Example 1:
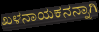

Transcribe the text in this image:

ಖಳನಾಯಕನನ್ನಾಗಿ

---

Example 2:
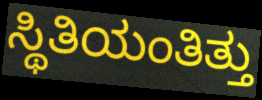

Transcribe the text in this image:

ಸ್ಥಿತಿಯಂತಿತ್ತು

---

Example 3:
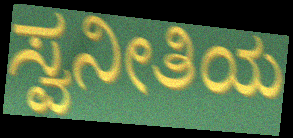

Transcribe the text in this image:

ಸ್ವನೀತಿಯ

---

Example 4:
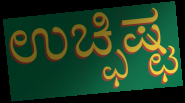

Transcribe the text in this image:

ಉಚ್ಫಿಷ್ಟ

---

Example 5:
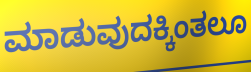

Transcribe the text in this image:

ಮಾಡುವುದಕ್ಕಿಂತಲೂ